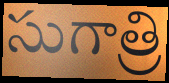
సుగాత్రి